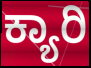
ಕ್ಯಾರಿ